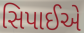
સિપાઈએ